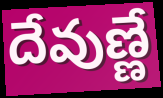
దేవుణ్ణే